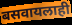
बसवायलाही